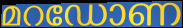
മറഡോണ